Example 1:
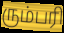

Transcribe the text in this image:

ரும்பரி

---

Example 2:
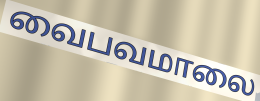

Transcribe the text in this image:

வைபவமாலை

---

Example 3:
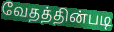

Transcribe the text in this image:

வேதத்தின்படி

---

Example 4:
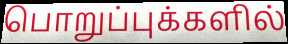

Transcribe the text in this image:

பொறுப்புக்களில்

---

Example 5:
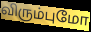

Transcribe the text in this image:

விரும்புமோ